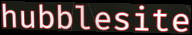
hubblesite